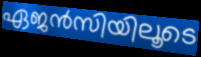
ഏജൻസിയിലൂടെ